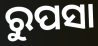
ରୁପସା